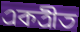
একত্ৰীত